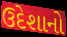
ઉદેશાનો